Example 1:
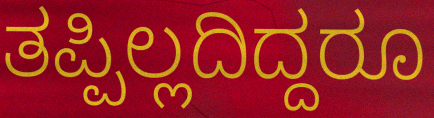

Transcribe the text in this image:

ತಪ್ಪಿಲ್ಲದಿದ್ದರೂ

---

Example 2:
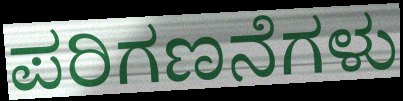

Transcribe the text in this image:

ಪರಿಗಣನೆಗಳು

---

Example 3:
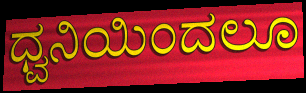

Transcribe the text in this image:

ಧ್ವನಿಯಿಂದಲೂ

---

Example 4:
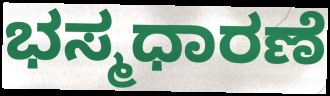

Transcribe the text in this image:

ಭಸ್ಮಧಾರಣೆ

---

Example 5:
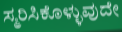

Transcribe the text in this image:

ಸ್ಮರಿಸಿಕೊಳ್ಳುವುದೇ